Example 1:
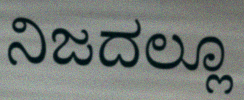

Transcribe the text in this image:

ನಿಜದಲ್ಲೂ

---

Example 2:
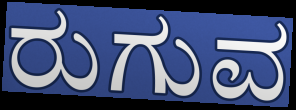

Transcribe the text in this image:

ರುಗುವ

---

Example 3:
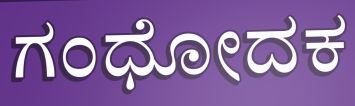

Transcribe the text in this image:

ಗಂಧೋದಕ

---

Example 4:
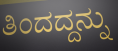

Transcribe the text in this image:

ತಿಂದದ್ದನ್ನು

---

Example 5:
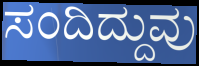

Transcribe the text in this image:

ಸಂದಿದ್ದುವು